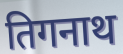
तिगनाथ